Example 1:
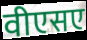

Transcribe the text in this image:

वीएसए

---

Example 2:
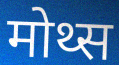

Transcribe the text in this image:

मोथ्स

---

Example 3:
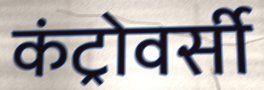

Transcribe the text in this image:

कंट्रोवर्सी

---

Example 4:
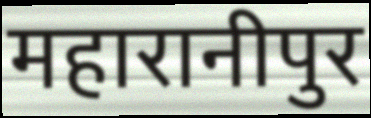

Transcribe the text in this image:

महारानीपुर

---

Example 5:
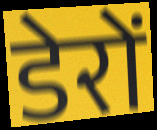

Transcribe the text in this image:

डेरों